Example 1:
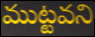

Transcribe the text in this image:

ముట్టవని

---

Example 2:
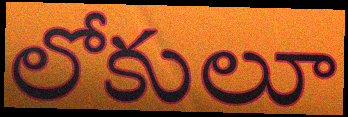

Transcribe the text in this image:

లోకులూ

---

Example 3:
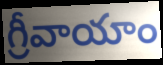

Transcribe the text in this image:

గ్రీవాయాం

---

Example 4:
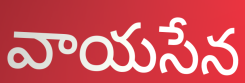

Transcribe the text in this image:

వాయసేన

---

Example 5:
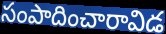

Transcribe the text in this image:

సంపాదించారావిడ